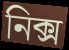
নিক্স